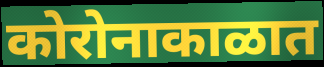
कोरोनाकाळात